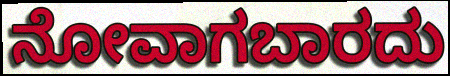
ನೋವಾಗಬಾರದು